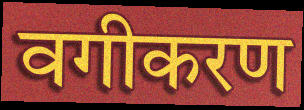
वगीकरण